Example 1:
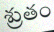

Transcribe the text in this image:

శ్రుతం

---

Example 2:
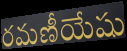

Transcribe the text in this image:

రమణీయేషు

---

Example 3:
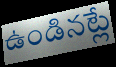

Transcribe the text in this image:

ఉండినట్లే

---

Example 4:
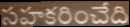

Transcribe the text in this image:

సహకరించేది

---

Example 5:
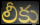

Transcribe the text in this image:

లీకు